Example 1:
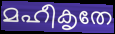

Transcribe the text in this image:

മഹീകൃതേ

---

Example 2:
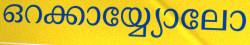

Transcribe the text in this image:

ഒറക്കായ്യ്യോലോ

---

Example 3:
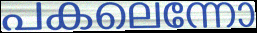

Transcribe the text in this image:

പകലെന്നോ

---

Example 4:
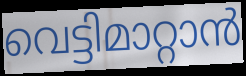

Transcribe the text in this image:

വെട്ടിമാറ്റാൻ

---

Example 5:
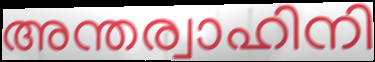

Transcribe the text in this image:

അന്തര്വാഹിനി